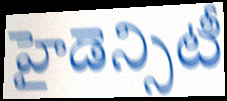
హైడెన్సిటీ